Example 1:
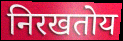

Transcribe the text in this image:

निरखतोय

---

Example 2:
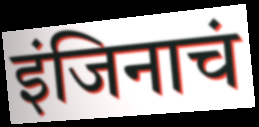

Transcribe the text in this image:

इंजिनाचं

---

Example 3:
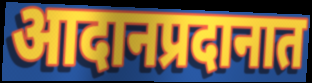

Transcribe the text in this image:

आदानप्रदानात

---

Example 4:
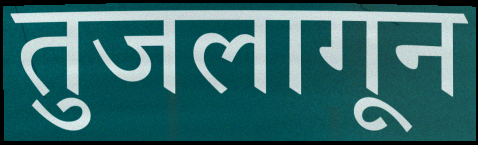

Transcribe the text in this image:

तुजलागून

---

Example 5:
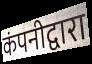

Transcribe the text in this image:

कंपनीद्वारा